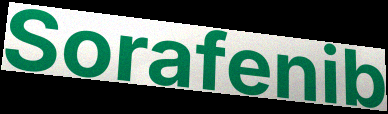
Sorafenib